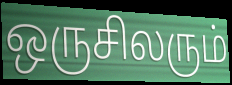
ஒருசிலரும்